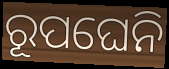
ରୂପଘେନି